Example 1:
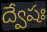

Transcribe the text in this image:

ద్వేషః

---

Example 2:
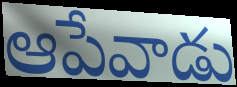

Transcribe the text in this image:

ఆపేవాడు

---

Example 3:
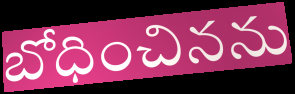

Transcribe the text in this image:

బోధించినను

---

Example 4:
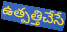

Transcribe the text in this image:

ఉత్పత్తిచేసే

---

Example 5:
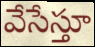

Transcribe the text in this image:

వేసేస్తూ